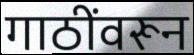
गाठींवरून